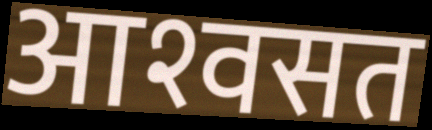
आश्वसत